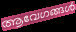
ആവേഗങ്ങൾ